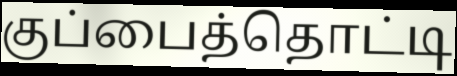
குப்பைத்தொட்டி